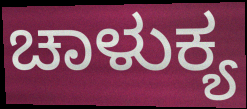
ಚಾಳುಕ್ಯ